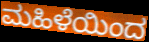
ಮಹಿಳೆಯಿಂದ